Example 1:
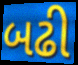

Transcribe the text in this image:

બઢી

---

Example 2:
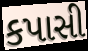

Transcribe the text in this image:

કપાસી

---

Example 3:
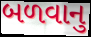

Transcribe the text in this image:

બળવાનુ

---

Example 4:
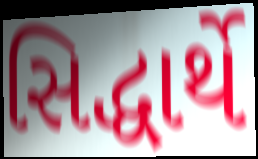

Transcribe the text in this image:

સિદ્ધાર્થે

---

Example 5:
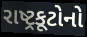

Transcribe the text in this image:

રાષ્ટ્રકૂટોનો